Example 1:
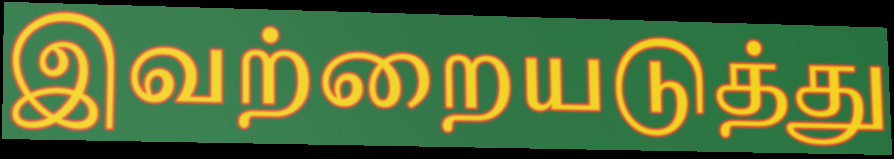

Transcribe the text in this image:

இவற்றையடுத்து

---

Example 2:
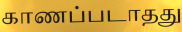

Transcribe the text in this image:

காணப்படாதது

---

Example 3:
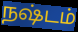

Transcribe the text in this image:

நஷ்டம்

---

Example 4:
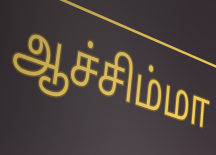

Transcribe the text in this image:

ஆச்சிம்மா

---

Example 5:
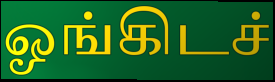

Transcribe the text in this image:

ஓங்கிடச்